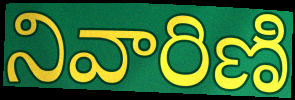
నివారిణి